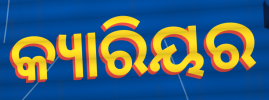
କ୍ୟାରିୟର